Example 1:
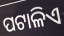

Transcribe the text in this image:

ପଟାଳିଏ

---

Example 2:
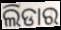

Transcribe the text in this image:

ଲିଡାର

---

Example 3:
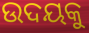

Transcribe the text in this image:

ଉଦୟକୁ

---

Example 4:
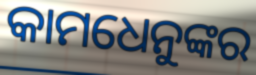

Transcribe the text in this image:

କାମଧେନୁଙ୍କର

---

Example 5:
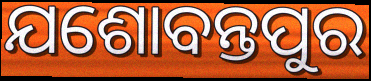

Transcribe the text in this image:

ଯଶୋବନ୍ତପୁର